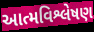
આત્મવિશ્લેષણ